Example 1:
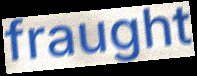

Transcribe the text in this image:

fraught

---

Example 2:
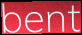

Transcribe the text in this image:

bent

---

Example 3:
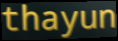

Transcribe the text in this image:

thayun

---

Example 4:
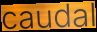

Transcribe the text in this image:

caudal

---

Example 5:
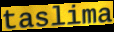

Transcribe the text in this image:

taslima